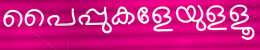
പൈപ്പുകളേയുളളൂ